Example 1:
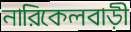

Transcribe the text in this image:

নারিকেলবাড়ী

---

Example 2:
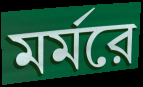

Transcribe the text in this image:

মর্মরে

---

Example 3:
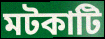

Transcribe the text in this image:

মটকাটি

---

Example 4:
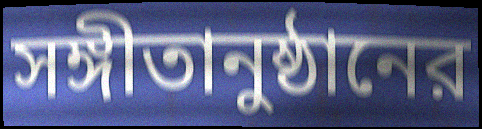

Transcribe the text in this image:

সঙ্গীতানুষ্ঠানের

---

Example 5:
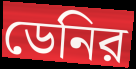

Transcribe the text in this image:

ডেনির